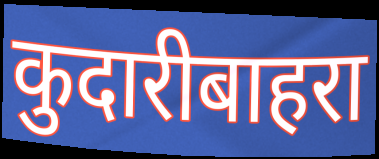
कुदारीबाहरा